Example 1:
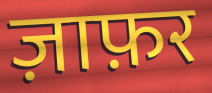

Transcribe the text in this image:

ज़ाफ़र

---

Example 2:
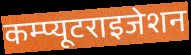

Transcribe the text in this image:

कम्प्यूटराइजेशन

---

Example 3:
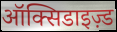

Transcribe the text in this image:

ऑक्सिडाइज़्ड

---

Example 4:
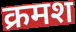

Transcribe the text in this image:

क्रमश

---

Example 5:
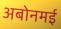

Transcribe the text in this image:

अबोनमई